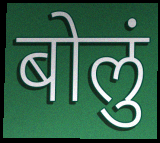
बोलुं